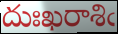
దుఃఖరాశిఁ